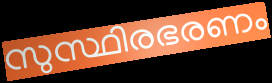
സുസ്ഥിരഭരണം